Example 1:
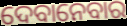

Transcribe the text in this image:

ଦେବାନେବାର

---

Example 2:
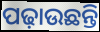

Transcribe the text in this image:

ପଢ଼ାଉଛନ୍ତି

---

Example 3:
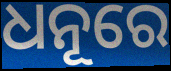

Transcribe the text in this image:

ଧନୂରେ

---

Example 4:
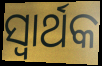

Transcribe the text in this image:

ସ୍ବାର୍ଥକ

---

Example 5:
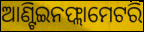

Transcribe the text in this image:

ଆଣ୍ଟିଇନଫ୍ଲାମେଟରି